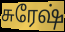
சுரேஷ்